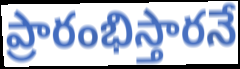
ప్రారంభిస్తారనే